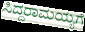
ಸಿದ್ದರಾಮಯ್ಯಗೆ